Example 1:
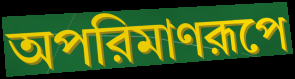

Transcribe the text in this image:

অপরিমাণরূপে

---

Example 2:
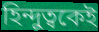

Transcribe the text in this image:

হিন্দুত্বকেই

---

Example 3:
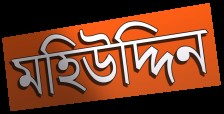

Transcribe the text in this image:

মহিউদ্দিন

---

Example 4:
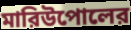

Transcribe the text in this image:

মারিউপোলের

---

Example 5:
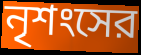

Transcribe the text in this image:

নৃশংসের